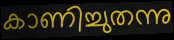
കാണിച്ചുതന്നു